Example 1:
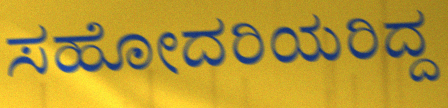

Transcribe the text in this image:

ಸಹೋದರಿಯರಿದ್ದ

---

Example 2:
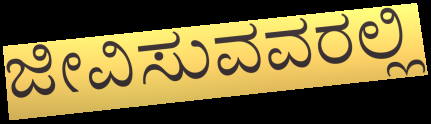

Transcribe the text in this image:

ಜೀವಿಸುವವರಲ್ಲಿ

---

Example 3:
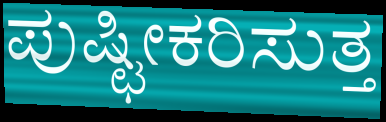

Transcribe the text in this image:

ಪುಷ್ಟೀಕರಿಸುತ್ತ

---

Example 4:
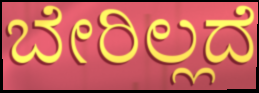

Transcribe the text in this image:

ಬೇರಿಲ್ಲದೆ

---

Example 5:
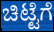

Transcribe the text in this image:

ಚಿಟ್ಟೆಗೆ